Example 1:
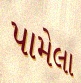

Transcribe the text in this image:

પામેલા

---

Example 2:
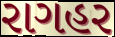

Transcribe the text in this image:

રાગહર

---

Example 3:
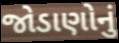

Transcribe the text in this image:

જોડાણોનું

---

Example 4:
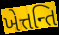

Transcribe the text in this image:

ખેત્તન્તિ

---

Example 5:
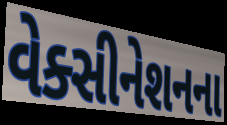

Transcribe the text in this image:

વેક્સીનેશનના